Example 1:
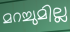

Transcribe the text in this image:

മറച്ചുമില്ല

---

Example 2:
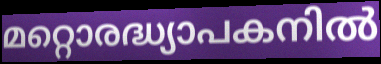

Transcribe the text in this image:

മറ്റൊരദ്ധ്യാപകനിൽ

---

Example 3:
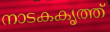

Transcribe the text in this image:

നാടകകൃത്ത്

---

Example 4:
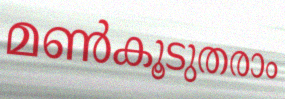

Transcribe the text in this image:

മൺകൂടുതരാം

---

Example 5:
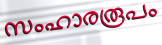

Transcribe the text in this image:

സംഹാരരൂപം